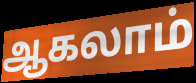
ஆகலாம்